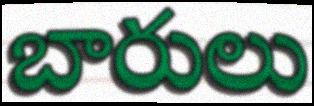
బారులు